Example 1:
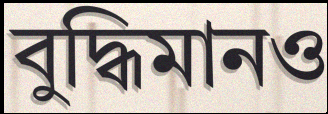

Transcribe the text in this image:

বুদ্ধিমানও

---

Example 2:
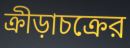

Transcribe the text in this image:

ক্রীড়াচক্রের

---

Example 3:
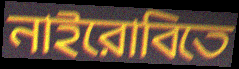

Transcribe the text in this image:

নাইরোবিতে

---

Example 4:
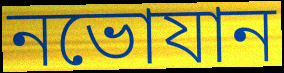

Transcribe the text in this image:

নভোযান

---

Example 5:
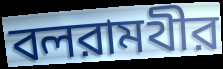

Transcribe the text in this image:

বলরামথীর